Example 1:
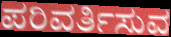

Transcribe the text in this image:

ಪರಿವರ್ತಿಸುವ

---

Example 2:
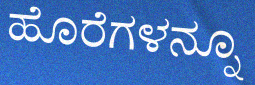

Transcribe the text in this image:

ಹೊರೆಗಳನ್ನೂ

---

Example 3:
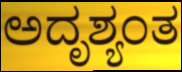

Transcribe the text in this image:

ಅದೃಶ್ಯಂತ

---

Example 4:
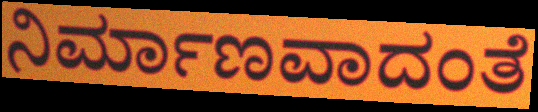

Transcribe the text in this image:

ನಿರ್ಮಾಣವಾದಂತೆ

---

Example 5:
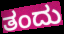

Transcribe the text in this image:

ತಂದು